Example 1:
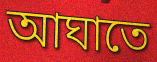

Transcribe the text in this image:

আঘাতে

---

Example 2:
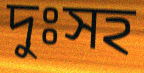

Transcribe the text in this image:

দুঃসহ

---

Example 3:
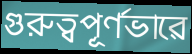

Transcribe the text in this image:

গুৰুত্বপূৰ্ণভাৱে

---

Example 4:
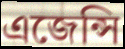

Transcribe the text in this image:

এজেন্সি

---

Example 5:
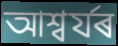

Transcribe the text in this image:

আশ্বৰ্যৰ